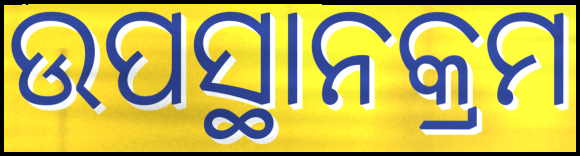
ଉପସ୍ଥାନକ୍ରମ